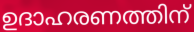
ഉദാഹരണത്തിന്